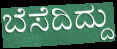
ಬೆಸೆದಿದ್ದು